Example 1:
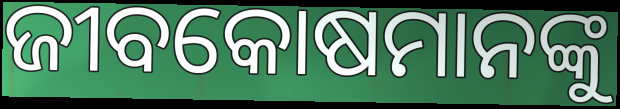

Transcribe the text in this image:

ଜୀବକୋଷମାନଙ୍କୁ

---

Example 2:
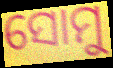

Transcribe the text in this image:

ସୋମୁ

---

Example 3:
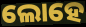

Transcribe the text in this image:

ଲୋହେ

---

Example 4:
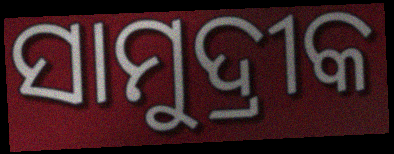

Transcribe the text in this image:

ସାମୁଦ୍ରୀକ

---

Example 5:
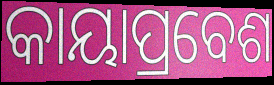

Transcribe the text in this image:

କାୟାପ୍ରବେଶ